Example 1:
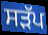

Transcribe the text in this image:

ਸੜੱਪ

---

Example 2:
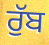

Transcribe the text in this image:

ਰੁੱਬ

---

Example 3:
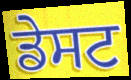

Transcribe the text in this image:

ਡੇਸਟ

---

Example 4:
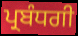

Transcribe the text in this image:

ਪ੍ਰਬੰਧਗੀ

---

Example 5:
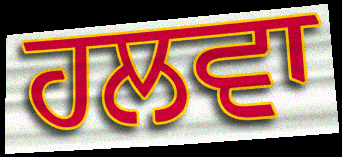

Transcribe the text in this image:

ਹਲਵਾ